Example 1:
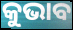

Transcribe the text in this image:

କୁଭାବ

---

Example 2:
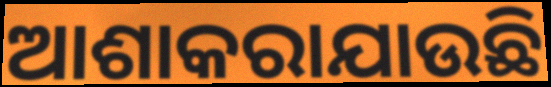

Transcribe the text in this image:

ଆଶାକରାଯାଉଛି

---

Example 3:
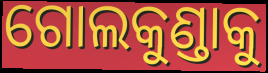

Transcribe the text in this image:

ଗୋଲକୁଣ୍ଡାକୁ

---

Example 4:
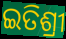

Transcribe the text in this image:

ଇତିଶ୍ରୀ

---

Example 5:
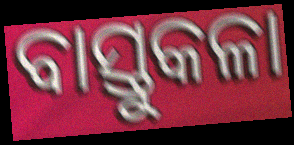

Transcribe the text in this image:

ବାସ୍ତୁକଳା